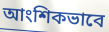
আংশিকভাবে